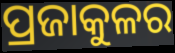
ପ୍ରଜାକୁଳର